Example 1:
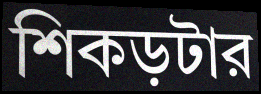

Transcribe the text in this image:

শিকড়টার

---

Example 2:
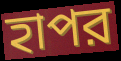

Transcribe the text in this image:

হাপর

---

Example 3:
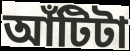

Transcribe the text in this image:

আঁটিটা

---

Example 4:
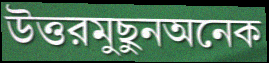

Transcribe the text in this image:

উত্তরমুছুনঅনেক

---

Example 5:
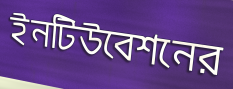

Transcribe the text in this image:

ইনটিউবেশনের